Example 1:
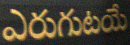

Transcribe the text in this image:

ఎరుగుటయే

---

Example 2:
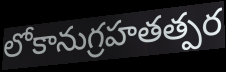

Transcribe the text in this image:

లోకానుగ్రహతత్పర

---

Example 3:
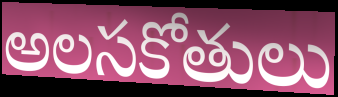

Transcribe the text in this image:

అలసకోతులు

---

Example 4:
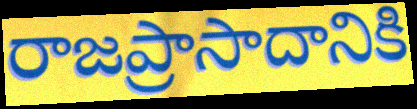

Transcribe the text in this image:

రాజప్రాసాదానికి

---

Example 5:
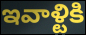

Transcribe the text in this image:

ఇవాళ్టికి